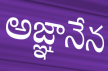
అజ్ఞానేన